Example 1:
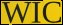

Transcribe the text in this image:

WIC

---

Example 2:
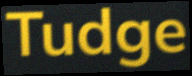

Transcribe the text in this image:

Tudge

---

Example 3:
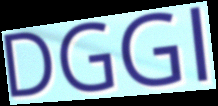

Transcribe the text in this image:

DGGI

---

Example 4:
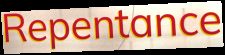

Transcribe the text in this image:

Repentance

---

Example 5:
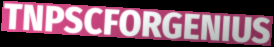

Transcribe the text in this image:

TNPSCFORGENIUS